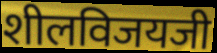
शीलविजयजी